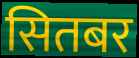
सितबर